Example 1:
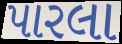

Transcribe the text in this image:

પારલા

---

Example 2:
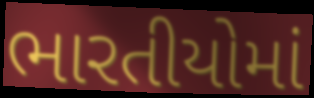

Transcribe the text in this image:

ભારતીયોમાં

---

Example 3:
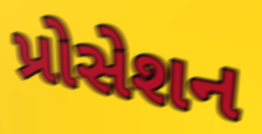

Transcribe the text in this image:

પ્રોસેશન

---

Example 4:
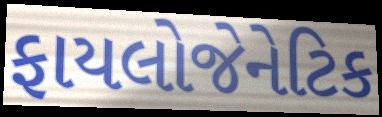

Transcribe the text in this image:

ફાયલોજેનેટિક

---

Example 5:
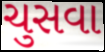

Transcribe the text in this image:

ચુસવા